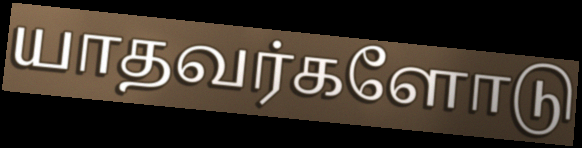
யாதவர்களோடு